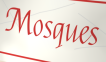
Mosques